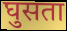
घुसता